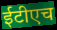
ईटीएच